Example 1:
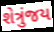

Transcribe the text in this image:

શેત્રુંજય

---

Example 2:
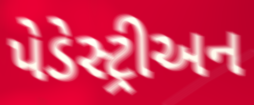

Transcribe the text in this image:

પેડેસ્ટ્રીઅન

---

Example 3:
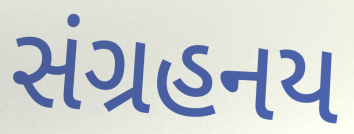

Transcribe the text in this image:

સંગ્રહનય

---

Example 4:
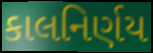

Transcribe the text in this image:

કાલનિર્ણય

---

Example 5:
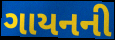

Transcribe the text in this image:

ગાયનની